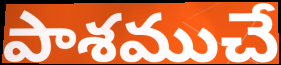
పాశముచే